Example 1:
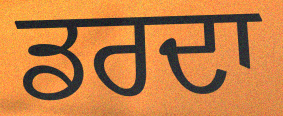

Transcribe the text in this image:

ਡਰਦਾ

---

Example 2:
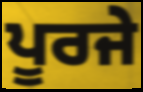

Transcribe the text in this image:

ਪੂਰਜੇ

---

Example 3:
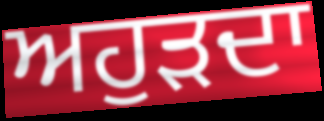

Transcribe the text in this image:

ਅਹੁੜਦਾ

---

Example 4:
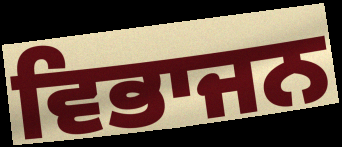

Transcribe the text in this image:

ਵਿਭਾਜਨ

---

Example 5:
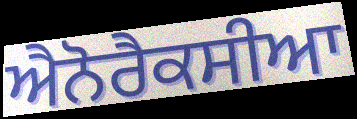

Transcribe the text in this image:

ਐਨੋਰੈਕਸੀਆ